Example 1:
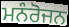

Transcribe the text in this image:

ਮਨੰਰੋਜਨ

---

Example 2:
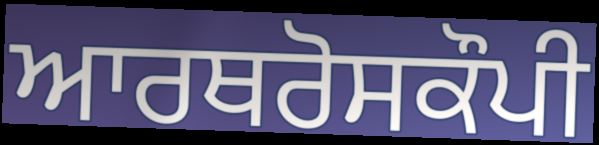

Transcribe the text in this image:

ਆਰਥਰੋਸਕੌਪੀ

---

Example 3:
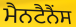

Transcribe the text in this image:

ਮੈਨਟੈਨੈਂਸ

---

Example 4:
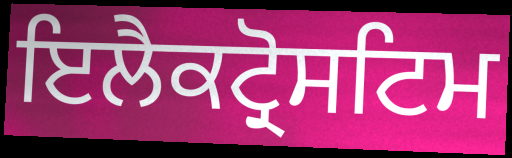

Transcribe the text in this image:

ਇਲੈਕਟ੍ਰੋਸਟਿਮ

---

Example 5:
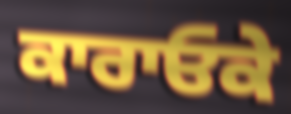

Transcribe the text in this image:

ਕਾਰਾਓਕੇ